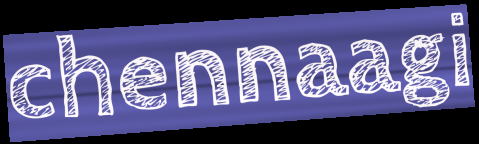
chennaagi